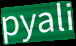
pyali